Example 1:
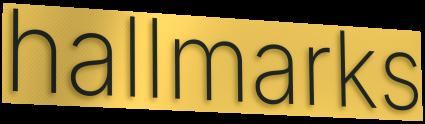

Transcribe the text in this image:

hallmarks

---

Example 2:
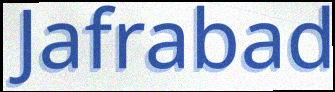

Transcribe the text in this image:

Jafrabad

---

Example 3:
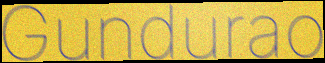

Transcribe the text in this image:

Gundurao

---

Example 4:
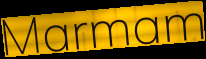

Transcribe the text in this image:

Marmam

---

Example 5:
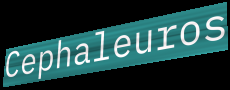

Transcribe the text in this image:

Cephaleuros